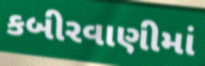
કબીરવાણીમાં